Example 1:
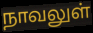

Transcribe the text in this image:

நாவலுள்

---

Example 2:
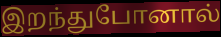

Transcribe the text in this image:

இறந்துபோனால்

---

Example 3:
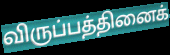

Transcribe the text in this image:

விருப்பத்தினைக்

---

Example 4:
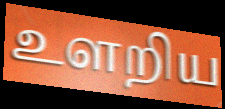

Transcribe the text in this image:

உளறிய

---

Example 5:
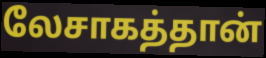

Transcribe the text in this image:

லேசாகத்தான்